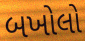
બખોલો